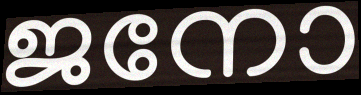
ജനോ